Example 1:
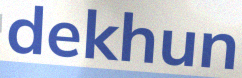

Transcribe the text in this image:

dekhun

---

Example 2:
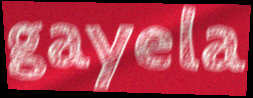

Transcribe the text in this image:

gayela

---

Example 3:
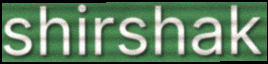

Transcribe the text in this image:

shirshak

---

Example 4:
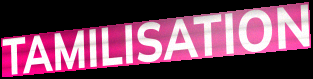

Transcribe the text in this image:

TAMILISATION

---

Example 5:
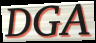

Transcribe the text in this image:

DGA